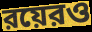
রয়েরও